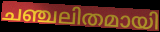
ചഞ്ചലിതമായി